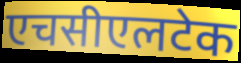
एचसीएलटेक